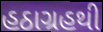
હઠાગ્રહથી